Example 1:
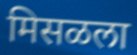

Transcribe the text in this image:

मिसळला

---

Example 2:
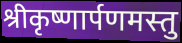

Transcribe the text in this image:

श्रीकृष्णार्पणमस्तु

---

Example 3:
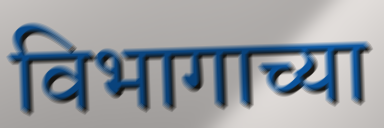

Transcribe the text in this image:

विभागाच्या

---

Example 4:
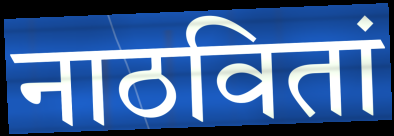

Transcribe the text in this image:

नाठवितां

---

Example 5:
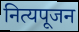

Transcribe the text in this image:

नित्यपूजन